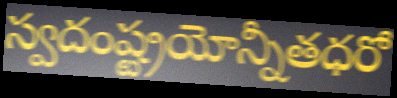
స్వదంష్ట్రయోన్నీతధరో